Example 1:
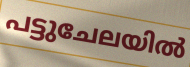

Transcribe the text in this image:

പട്ടുചേലയിൽ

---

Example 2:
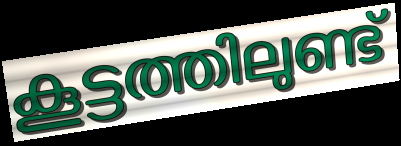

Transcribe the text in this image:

കൂട്ടത്തിലുണ്ട്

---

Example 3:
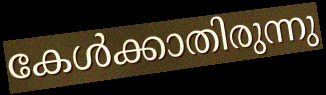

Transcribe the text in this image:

കേൾക്കാതിരുന്നു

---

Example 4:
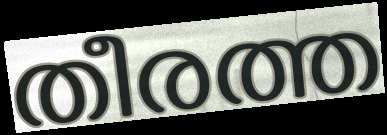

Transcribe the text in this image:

തീരത്ത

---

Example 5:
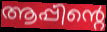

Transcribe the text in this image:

ആൎപ്പിന്റെ